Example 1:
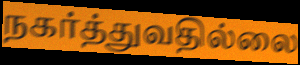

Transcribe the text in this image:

நகர்த்துவதில்லை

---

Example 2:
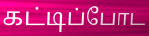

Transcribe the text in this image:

கட்டிப்போட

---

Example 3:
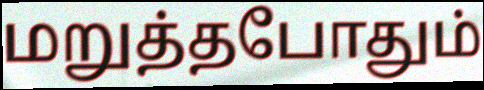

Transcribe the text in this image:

மறுத்தபோதும்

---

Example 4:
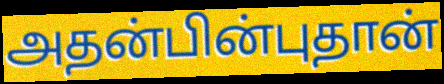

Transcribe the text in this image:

அதன்பின்புதான்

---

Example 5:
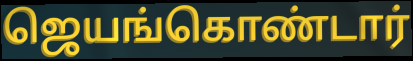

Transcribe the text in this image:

ஜெயங்கொண்டார்